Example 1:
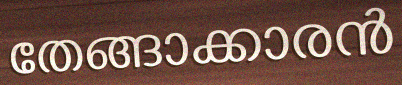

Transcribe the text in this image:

തേങ്ങാക്കാരൻ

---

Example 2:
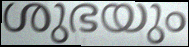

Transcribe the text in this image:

ശുഭയും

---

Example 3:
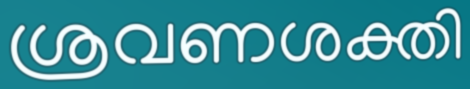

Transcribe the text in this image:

ശ്രവണശക്തി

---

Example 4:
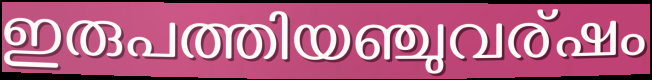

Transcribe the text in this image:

ഇരുപത്തിയഞ്ചുവര്ഷം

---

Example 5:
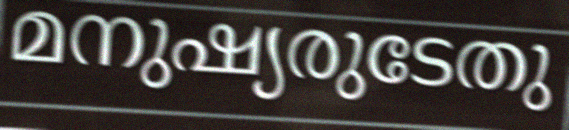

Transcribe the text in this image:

മനുഷ്യരുടേതു